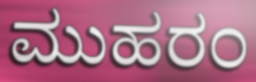
ಮುಹರಂ